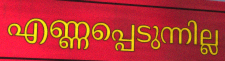
എണ്ണപ്പെടുന്നില്ല